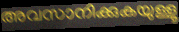
അവസാനിക്കുകയുള്ളൂ